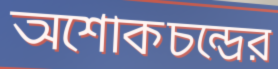
অশোকচন্দ্রের